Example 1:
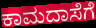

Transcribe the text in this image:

ಕಾಮದಾಸೆಗೆ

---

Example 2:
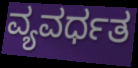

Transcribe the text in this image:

ವ್ಯವರ್ಧತ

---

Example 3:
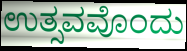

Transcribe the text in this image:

ಉತ್ಸವವೊಂದು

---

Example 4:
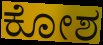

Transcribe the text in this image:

ಕೋಶ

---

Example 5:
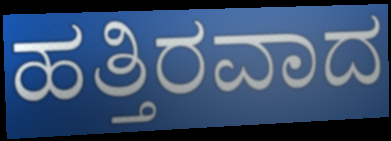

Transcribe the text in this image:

ಹತ್ತಿರವಾದ